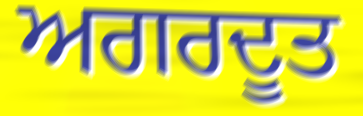
ਅਗਰਦੂਤ